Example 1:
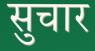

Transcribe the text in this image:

सुचार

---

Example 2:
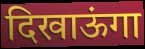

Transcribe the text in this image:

दिखाऊंगा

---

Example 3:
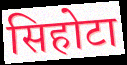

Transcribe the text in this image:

सिहोटा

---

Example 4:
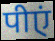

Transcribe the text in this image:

पीएं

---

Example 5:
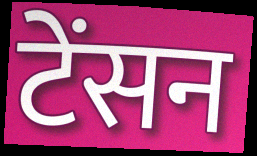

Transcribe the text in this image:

टेंसन